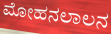
ಮೋಹನಲಾಲನ